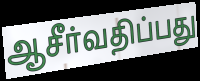
ஆசீர்வதிப்பது